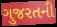
ગુજરતની